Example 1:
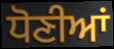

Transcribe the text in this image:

ਧੋਣੀਆਂ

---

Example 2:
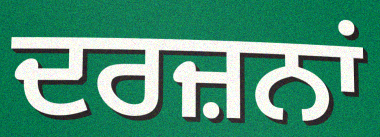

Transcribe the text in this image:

ਦਰਜ਼ਨਾਂ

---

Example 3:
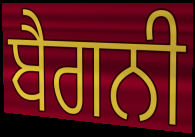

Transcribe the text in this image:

ਬੈਗਨੀ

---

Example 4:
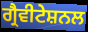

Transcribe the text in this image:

ਗ੍ਰੈਵੀਟੇਸ਼ਨਲ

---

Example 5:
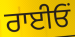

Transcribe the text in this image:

ਰਾਈਓਂ